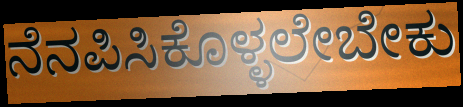
ನೆನಪಿಸಿಕೊಳ್ಳಲೇಬೇಕು